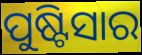
ପୁଷ୍ଟିସାର